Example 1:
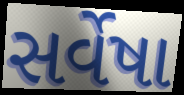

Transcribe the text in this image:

સર્વેષા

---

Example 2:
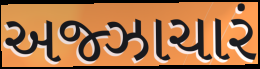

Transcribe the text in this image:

અજ્ઝાચારં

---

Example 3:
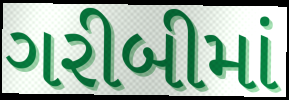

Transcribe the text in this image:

ગરીબીમાં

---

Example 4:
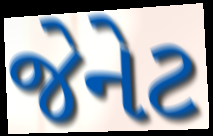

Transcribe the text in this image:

જેનેટ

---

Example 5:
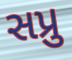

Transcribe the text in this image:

સપ્રુ